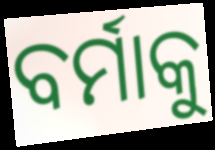
ବର୍ମାକୁ